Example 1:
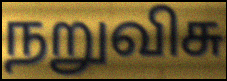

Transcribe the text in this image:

நறுவிசு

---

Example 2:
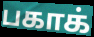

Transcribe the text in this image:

பகாக்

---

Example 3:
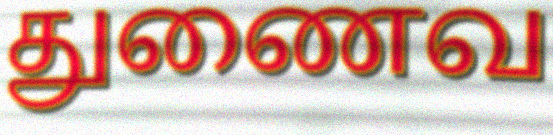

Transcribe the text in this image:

துணைவ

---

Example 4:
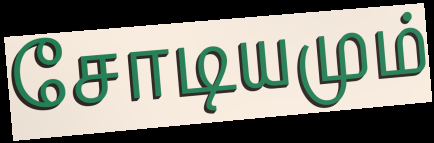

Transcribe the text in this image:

சோடியமும்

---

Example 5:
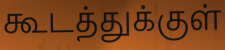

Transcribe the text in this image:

கூடத்துக்குள்